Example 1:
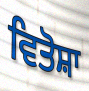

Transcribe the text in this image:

ਵਿਤੋਸ਼ਾ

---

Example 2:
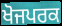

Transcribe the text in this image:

ਖੋਜਪਰਕ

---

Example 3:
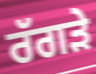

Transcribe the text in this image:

ਰੱਗੜੇ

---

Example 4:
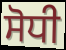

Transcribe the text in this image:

ਸੋਧੀ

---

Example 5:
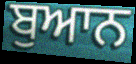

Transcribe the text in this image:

ਬੁਆਨ